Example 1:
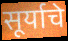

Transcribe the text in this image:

सूर्याचे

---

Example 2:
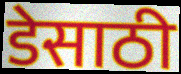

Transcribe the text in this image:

डेसाठी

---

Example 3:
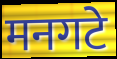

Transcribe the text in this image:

मनगटे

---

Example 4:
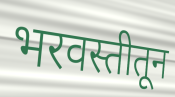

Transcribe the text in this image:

भरवस्तीतून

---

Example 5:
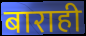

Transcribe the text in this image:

बाराही